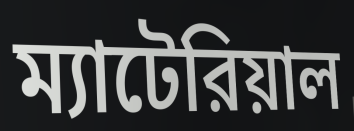
ম্যাটেরিয়াল